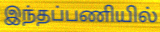
இந்தப்பணியில்